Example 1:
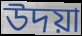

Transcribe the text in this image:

উদয়া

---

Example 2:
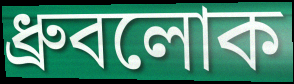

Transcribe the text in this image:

ধ্রুবলোক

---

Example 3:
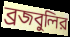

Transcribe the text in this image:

ব্রজবুলির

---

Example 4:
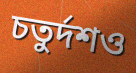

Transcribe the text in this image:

চতুর্দশও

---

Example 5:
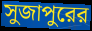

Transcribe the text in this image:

সুজাপুরের